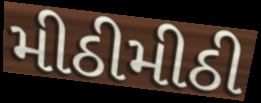
મીઠીમીઠી